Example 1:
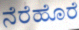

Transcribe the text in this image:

ನೆರೆಹೊರೆ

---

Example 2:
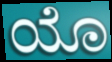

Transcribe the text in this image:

ಯೊ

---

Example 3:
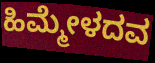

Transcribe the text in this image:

ಹಿಮ್ಮೇಳದವ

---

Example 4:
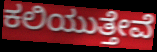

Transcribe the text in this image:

ಕಲಿಯುತ್ತೇವೆ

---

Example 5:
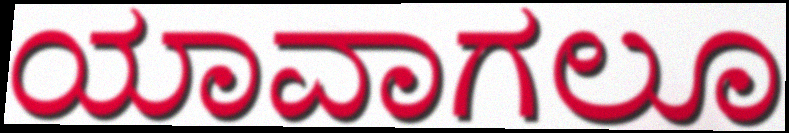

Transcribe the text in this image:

ಯಾವಾಗಲೂ